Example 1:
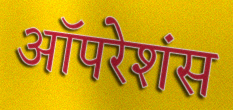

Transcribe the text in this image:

ऑपरेशंस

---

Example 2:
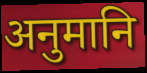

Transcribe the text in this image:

अनुमानि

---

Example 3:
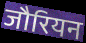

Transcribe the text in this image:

जौरियन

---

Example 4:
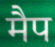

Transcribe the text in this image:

मैप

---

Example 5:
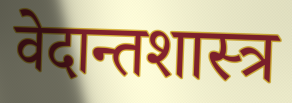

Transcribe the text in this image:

वेदान्तशास्त्र